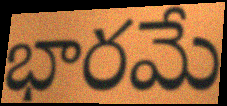
భారమే